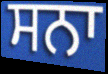
ਸਨਾ